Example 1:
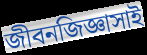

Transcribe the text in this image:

জীবনজিজ্ঞাসাই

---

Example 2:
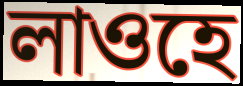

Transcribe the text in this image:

লাওহে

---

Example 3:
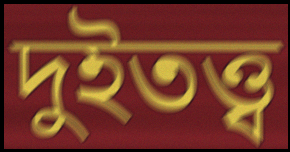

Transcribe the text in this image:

দুইতত্ত্ব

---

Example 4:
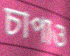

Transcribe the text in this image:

চাপাও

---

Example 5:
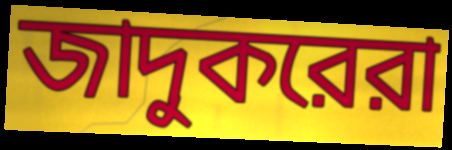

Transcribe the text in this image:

জাদুকরেরা